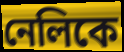
নেলিকে